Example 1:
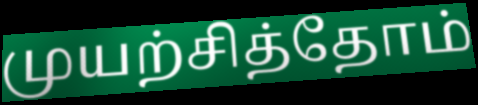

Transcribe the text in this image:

முயற்சித்தோம்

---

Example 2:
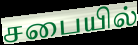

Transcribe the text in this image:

சபையில்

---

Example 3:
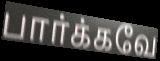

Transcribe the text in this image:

பார்க்கவே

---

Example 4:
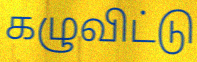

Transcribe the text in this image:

கழுவிட்டு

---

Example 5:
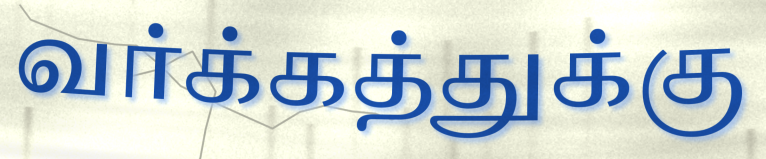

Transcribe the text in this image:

வர்க்கத்துக்கு